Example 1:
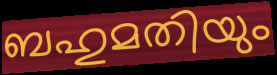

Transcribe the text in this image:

ബഹുമതിയും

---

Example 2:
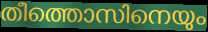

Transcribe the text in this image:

തീത്തൊസിനെയും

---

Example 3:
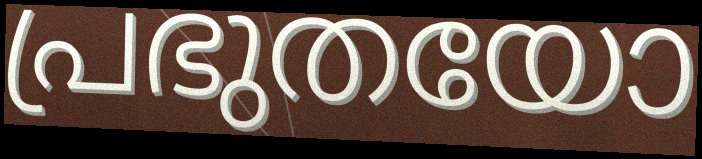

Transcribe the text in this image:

പ്രഭുതയോ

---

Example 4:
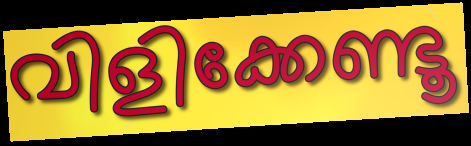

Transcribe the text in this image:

വിളിക്കേണ്ടൂ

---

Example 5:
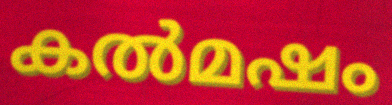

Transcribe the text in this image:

കൽമഷം